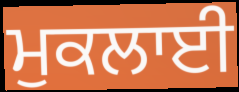
ਮੁਕਲਾਈ